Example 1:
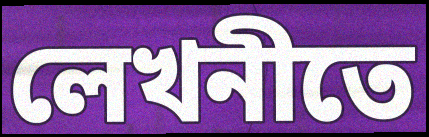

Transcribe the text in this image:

লেখনীতে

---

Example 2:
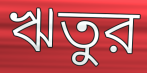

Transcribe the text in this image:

ঋতুর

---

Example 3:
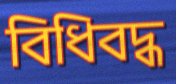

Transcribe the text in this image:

বিধিবদ্ধ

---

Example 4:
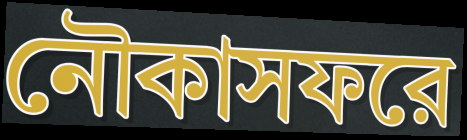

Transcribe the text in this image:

নৌকাসফরে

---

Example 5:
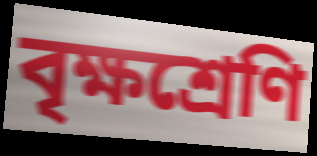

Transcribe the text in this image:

বৃক্ষশ্রেণি